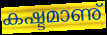
കഷ്ടമാണു്